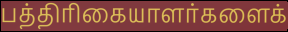
பத்திரிகையாளர்களைக்